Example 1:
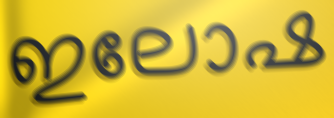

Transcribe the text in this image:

ഇലോഷ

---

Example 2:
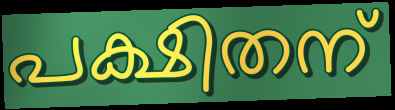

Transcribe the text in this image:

പക്ഷിതന്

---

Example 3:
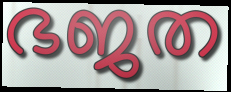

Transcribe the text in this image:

ഭജത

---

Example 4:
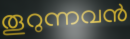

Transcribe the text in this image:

തൂറുന്നവൻ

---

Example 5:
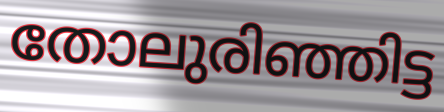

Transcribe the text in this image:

തോലുരിഞ്ഞിട്ട